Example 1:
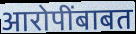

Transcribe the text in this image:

आरोपींबाबत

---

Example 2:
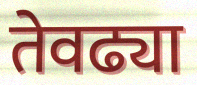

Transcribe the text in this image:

तेवढ्या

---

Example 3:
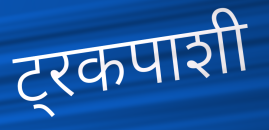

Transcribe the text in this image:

ट्रकपाशी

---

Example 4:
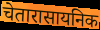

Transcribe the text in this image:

चेतारासायनिक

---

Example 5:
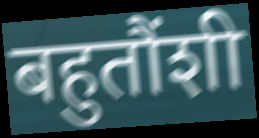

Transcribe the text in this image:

बहुतौंशी